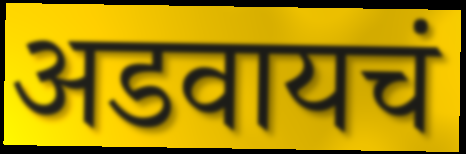
अडवायचं